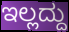
ಇಲ್ಲದ್ದು